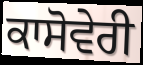
ਕਾਸੋਵੇਰੀ